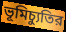
ভূমিচ্যুতির